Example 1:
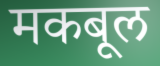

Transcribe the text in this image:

मकबूल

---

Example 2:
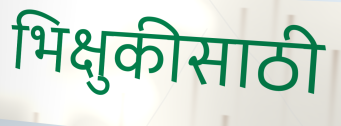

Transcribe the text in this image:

भिक्षुकीसाठी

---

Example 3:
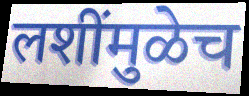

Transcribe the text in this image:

लशींमुळेच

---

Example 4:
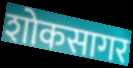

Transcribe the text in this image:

शोकसागर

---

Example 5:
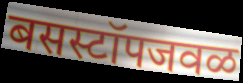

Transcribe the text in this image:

बसस्टॉपजवळ